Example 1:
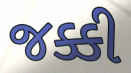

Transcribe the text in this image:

જક્કી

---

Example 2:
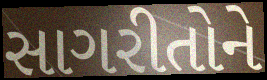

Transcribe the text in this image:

સાગરીતોને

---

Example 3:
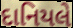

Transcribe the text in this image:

દાનિયલે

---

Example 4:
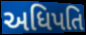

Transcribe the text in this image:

અધિપતિ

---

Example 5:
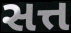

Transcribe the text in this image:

સત્ત